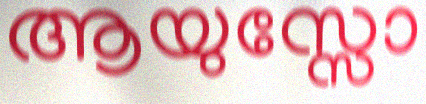
ആയുസ്സോ